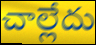
చాల్లేదు